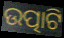
ଉତ୍ପାଟି